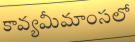
కావ్యమీమాంసలో